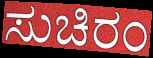
ಸುಚಿರಂ